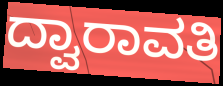
ದ್ವಾರಾವತಿ